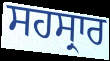
ਸਹਸ੍ਰਾਰ